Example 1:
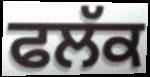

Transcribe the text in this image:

ਫਲੱਕ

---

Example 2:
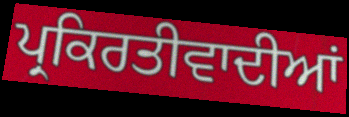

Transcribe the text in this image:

ਪ੍ਰਕਿਰਤੀਵਾਦੀਆਂ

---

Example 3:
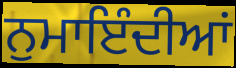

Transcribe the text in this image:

ਨੁਮਾਇੰਦੀਆਂ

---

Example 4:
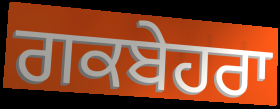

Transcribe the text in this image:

ਗਕਬੇਹਰਾ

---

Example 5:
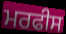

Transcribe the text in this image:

ਮਰਫੀਸ